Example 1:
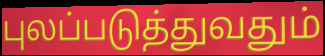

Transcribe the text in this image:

புலப்படுத்துவதும்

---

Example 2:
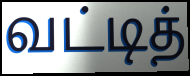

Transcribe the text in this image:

வட்டித்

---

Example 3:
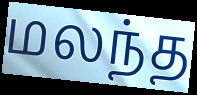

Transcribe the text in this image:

மலந்த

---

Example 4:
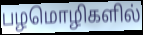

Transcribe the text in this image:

பழமொழிகளில்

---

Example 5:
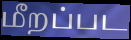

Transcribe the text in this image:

மீறப்பட